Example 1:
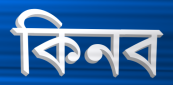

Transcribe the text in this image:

কিনব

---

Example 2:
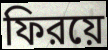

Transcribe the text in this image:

ফিরয়ে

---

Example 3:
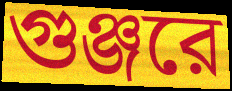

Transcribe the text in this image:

গুঞ্জরে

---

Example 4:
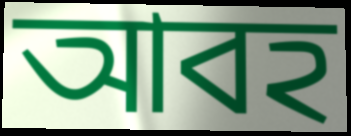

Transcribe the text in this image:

আবহ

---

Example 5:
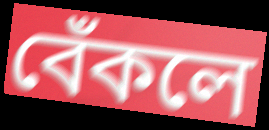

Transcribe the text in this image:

বেঁকলে